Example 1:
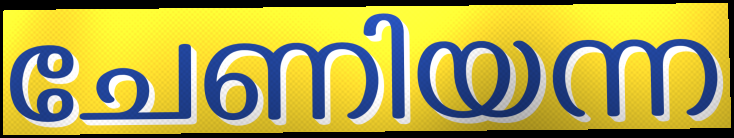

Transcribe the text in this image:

ചേണിയന്ന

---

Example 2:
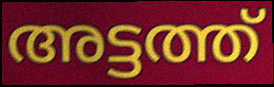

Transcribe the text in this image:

അട്ടത്ത്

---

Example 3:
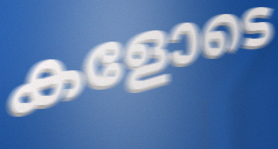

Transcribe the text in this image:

കളോടെ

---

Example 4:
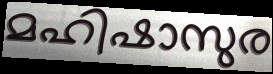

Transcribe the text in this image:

മഹിഷാസുര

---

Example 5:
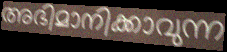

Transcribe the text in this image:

അഭിമാനിക്കാവുന്ന